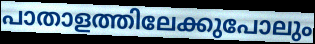
പാതാളത്തിലേക്കുപോലും